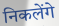
निकलेंगे